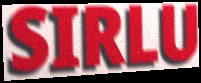
SIRLU